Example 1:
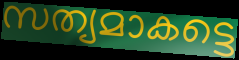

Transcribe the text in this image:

സത്യമാകട്ടെ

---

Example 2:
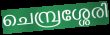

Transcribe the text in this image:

ചെമ്പ്രശ്ശേരി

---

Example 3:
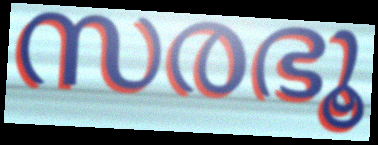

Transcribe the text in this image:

സരഭൂ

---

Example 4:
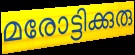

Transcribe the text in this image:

മരോട്ടിക്കുരു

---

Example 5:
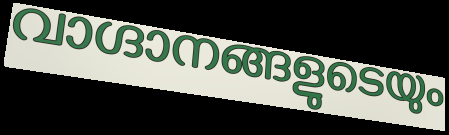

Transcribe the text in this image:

വാഗ്ദാനങ്ങളുടെയും